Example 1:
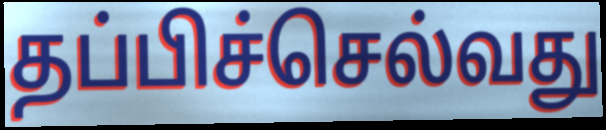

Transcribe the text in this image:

தப்பிச்செல்வது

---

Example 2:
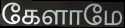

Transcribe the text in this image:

கேளாமே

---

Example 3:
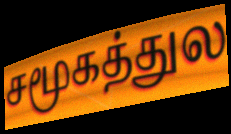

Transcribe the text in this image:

சமூகத்துல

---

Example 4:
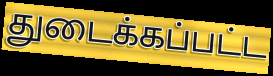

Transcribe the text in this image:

துடைக்கப்பட்ட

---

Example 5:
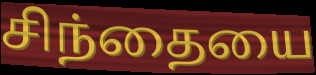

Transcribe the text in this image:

சிந்தையை